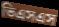
ভিএসএস